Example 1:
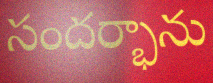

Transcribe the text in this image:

సందర్భాను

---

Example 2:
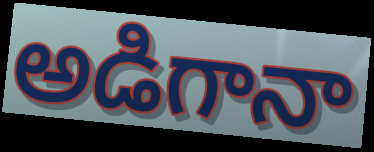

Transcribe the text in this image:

అడిగానా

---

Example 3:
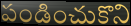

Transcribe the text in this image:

పండించుకొని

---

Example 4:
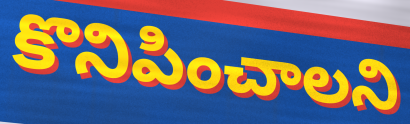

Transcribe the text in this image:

కొనిపించాలని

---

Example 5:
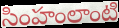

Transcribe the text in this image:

సింహంలాంటి